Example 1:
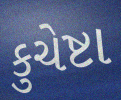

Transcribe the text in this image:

કુચેષ્ટા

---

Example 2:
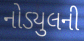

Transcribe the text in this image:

નોડ્યુલની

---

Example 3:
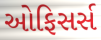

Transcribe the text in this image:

ઓફિસર્સ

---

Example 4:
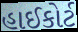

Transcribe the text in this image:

હાઈકોર્ટ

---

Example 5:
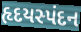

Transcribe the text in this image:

હૃદયસ્પંદન